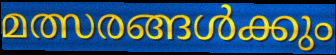
മത്സരങ്ങൾക്കും